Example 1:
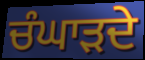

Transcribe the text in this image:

ਚੰਘਾੜਦੇ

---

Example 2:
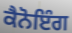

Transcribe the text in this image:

ਕੈਨੋਇੰਗ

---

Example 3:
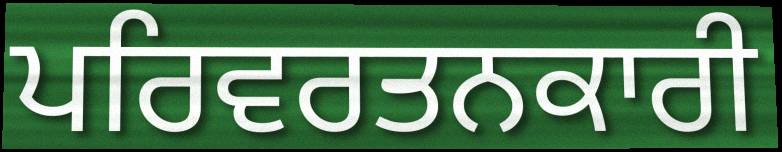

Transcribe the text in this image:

ਪਰਿਵਰਤਨਕਾਰੀ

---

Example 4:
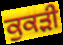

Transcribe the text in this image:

ਕੁਕੜੀ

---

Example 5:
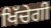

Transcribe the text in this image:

ਖਿੱਚੇਗੀ